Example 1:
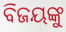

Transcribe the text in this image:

ବିଜୟଙ୍କୁ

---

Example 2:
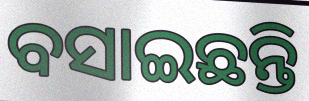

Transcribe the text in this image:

ବସାଇଛନ୍ତି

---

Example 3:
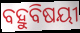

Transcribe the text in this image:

ବହୁବିଷୟୀ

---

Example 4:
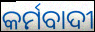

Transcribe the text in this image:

କର୍ମବାଦୀ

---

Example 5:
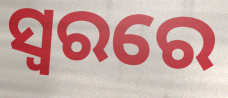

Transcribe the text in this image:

ସ୍ବରରେ